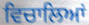
ਵਿਚਾਲਿਆਂ